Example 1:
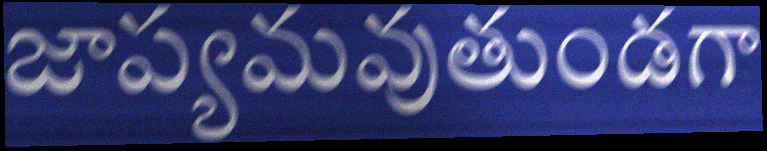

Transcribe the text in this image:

జాప్యమవుతుండగా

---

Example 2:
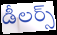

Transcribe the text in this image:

డీలర్స్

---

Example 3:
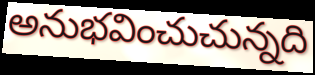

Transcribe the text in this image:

అనుభవించుచున్నది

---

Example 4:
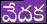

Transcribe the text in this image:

వేదక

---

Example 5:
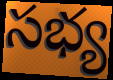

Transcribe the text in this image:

సభ్య